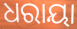
ଧରାୟା